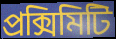
প্রক্সিমিটি